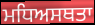
ਮਧਿਅਸਥਤਾ